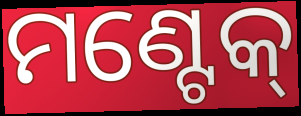
ମଣ୍ଟେକ୍